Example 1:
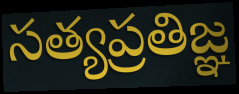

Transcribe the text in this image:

సత్యప్రతిజ్ఞ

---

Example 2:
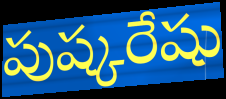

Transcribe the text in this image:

పుష్కరేషు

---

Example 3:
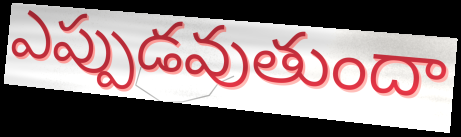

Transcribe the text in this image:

ఎప్పుడవుతుందా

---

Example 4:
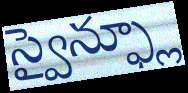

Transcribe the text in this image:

స్వైన్ఫ్లూ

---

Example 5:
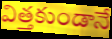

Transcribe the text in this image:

విత్తకుండానే